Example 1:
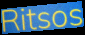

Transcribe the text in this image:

Ritsos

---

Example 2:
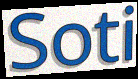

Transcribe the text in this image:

Soti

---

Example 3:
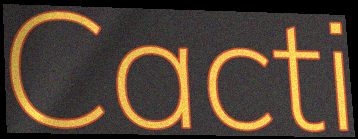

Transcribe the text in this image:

Cacti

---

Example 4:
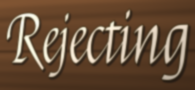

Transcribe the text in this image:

Rejecting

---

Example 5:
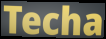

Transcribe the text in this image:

Techa